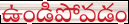
ఉండిపోవడం